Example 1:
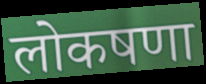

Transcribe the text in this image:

लोकषणा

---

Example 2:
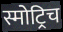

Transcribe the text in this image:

स्मोट्रिच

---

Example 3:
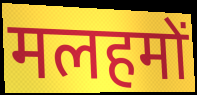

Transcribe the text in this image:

मलहमों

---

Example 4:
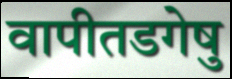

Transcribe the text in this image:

वापीतडगेषु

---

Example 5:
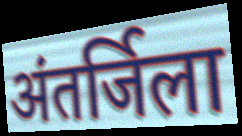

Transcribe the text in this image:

अंतर्जिला